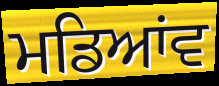
ਮਡਿਆਂਵ